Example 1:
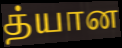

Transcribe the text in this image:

த்யான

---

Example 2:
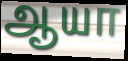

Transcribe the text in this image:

ஆயா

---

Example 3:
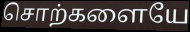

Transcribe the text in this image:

சொற்களையே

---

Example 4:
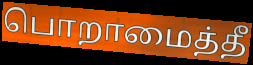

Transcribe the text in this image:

பொறாமைத்தீ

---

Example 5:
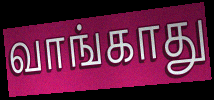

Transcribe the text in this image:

வாங்காது